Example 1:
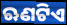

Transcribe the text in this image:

ଋଣଟିଏ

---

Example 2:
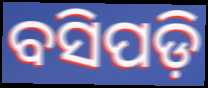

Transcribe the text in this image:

ବସିପଡ଼ି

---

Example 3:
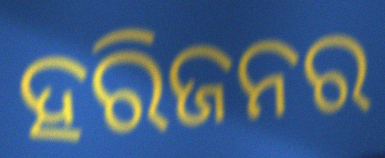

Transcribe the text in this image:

ହରିଜନର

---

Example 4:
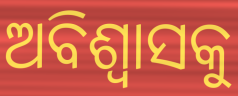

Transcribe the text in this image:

ଅବିଶ୍ୱାସକୁ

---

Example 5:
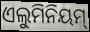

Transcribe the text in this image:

ଏଲୁମିନିୟମ୍